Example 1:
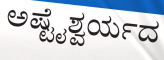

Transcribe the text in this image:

ಅಷ್ಟೈಶ್ವರ್ಯದ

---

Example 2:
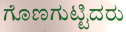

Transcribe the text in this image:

ಗೊಣಗುಟ್ಟಿದರು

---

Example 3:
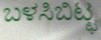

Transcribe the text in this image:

ಬಳಸಿಬಿಟ್ಟ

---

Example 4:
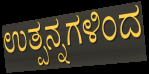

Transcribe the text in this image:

ಉತ್ಪನ್ನಗಳಿಂದ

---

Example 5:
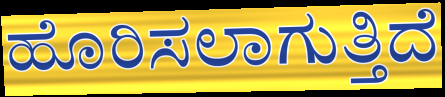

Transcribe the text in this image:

ಹೊರಿಸಲಾಗುತ್ತಿದೆ